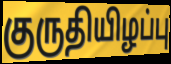
குருதியிழப்பு